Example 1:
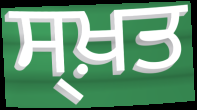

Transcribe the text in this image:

ਸ੍ਖ਼ਤ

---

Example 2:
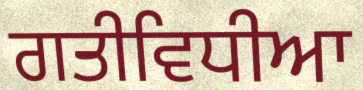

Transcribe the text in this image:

ਗਤੀਵਿਧੀਆ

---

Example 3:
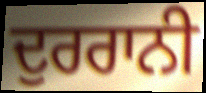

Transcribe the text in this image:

ਦੁਰਰਾਨੀ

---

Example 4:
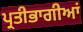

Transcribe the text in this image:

ਪ੍ਰਤੀਭਾਗੀਆਂ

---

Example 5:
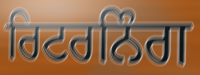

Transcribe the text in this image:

ਰਿਟਰਨਿੰਗ